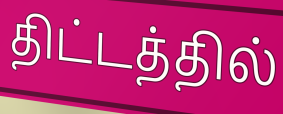
திட்டத்தில்